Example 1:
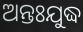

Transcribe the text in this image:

ଅନ୍ତଃଯୁଦ୍ଧ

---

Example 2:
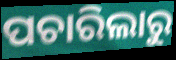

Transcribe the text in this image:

ପଚାରିଲାରୁ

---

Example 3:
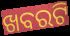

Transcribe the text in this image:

ଖବରଟି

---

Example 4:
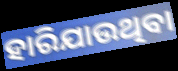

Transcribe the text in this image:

ହାରିଯାଉଥିବା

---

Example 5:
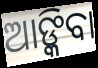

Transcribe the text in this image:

ଆଙ୍କିବା